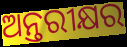
ଅନ୍ତରୀକ୍ଷର